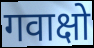
गवाक्षो